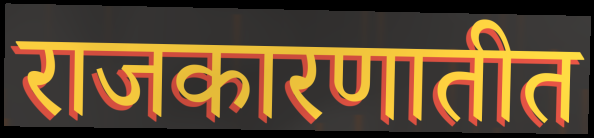
राजकारणातीत